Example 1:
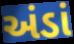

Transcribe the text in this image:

અંડાં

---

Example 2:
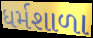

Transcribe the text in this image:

ધર્મશાળા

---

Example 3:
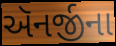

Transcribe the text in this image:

ઍનર્જીના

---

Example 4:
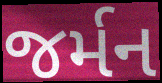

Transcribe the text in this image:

જર્મન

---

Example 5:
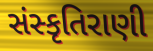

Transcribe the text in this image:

સંસ્કૃતિરાણી